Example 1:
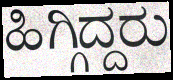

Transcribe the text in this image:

ಹಿಗ್ಗಿದ್ದರು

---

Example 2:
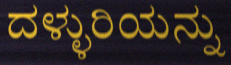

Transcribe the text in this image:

ದಳ್ಳುರಿಯನ್ನು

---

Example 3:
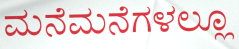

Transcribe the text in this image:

ಮನೆಮನೆಗಳಲ್ಲೂ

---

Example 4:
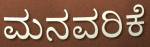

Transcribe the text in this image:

ಮನವರಿಕೆ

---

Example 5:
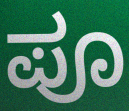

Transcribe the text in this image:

ಪೂ